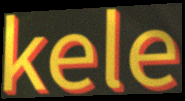
kele